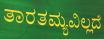
ತಾರತಮ್ಯವಿಲ್ಲದೆ